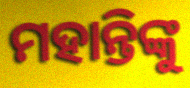
ମହାନ୍ତିଙ୍କୁ